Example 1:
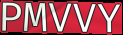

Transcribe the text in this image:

PMVVY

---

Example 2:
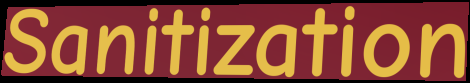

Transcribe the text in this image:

Sanitization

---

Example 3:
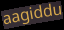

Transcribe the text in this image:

aagiddu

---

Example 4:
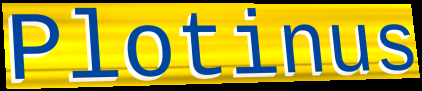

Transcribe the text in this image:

Plotinus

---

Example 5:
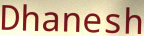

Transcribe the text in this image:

Dhanesh